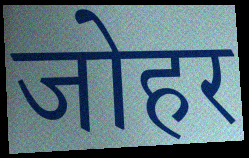
जोहर